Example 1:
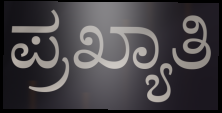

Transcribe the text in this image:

ಪ್ರಖ್ಯಾತಿ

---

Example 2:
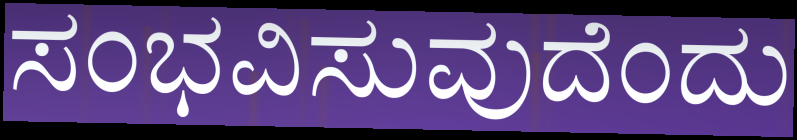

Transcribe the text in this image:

ಸಂಭವಿಸುವುದೆಂದು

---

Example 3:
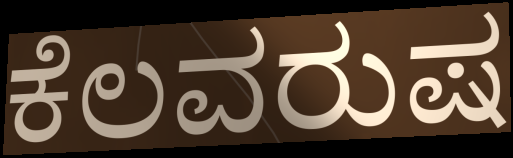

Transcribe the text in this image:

ಕೆಲವರುಷ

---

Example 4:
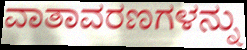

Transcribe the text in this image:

ವಾತಾವರಣಗಳನ್ನು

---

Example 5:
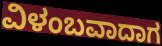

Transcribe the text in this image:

ವಿಳಂಬವಾದಾಗ